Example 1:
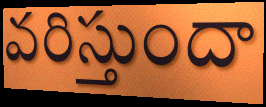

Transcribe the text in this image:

వరిస్తుందా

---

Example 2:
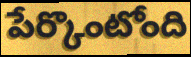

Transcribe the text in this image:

పేర్కొంటోంది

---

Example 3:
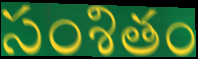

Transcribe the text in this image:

సంశితం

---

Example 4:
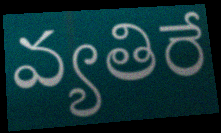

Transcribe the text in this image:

వ్యతిరే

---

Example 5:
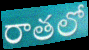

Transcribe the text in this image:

రాతలో